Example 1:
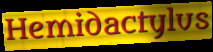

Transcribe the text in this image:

Hemidactylus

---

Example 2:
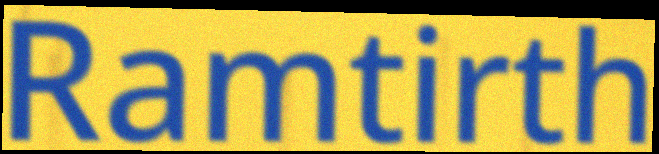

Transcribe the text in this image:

Ramtirth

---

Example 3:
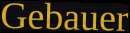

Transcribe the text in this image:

Gebauer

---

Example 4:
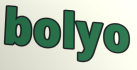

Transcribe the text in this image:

bolyo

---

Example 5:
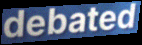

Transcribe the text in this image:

debated